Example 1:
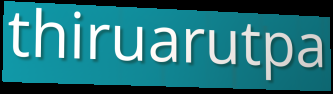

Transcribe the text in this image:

thiruarutpa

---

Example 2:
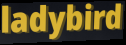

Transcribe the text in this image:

ladybird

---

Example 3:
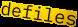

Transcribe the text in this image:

defiles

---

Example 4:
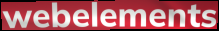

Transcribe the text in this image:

webelements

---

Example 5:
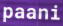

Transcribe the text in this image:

paani